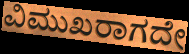
ವಿಮುಖರಾಗದೇ